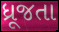
ધ્રૂજતા